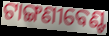
ଟାଙ୍ଗଣୀବେଣ୍ଟ